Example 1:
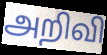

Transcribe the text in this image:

அறிவி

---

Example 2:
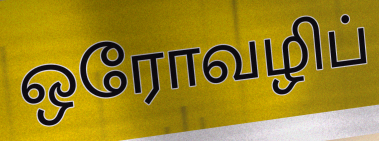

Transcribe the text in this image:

ஒரோவழிப்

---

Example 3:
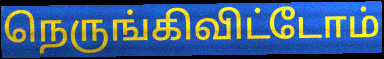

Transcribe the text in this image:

நெருங்கிவிட்டோம்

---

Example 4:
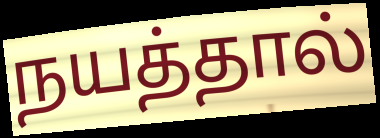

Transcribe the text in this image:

நயத்தால்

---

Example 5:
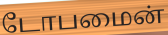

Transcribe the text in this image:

டோபமைன்